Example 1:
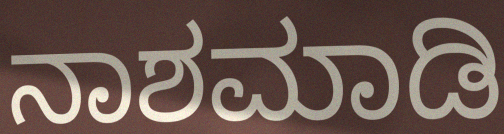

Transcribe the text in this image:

ನಾಶಮಾಡಿ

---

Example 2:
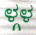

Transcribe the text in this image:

ಳ್ಗಳ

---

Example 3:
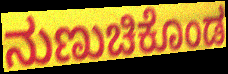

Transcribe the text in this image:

ನುಣುಚಿಕೊಂಡ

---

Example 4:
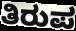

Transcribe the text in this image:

ತಿರುಪ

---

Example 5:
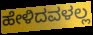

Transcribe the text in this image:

ಹೇಳಿದವಳಲ್ಲ